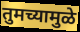
तुमच्यामुळे